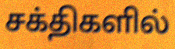
சக்திகளில்